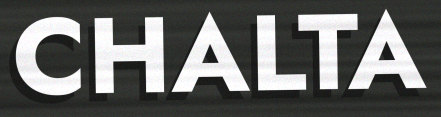
CHALTA